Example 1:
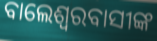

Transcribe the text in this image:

ବାଲେଶ୍ବରବାସୀଙ୍କ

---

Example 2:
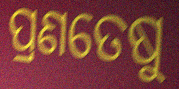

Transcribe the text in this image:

ପ୍ରଣତେଷୁ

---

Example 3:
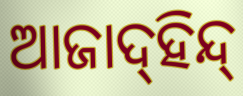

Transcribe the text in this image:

ଆଜାଦ୍‍ହିନ୍ଦ୍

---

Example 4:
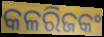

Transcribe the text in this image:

କଳରିଜକଂ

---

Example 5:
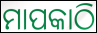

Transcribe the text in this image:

ମାପକାଠି